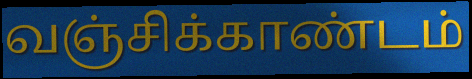
வஞ்சிக்காண்டம்